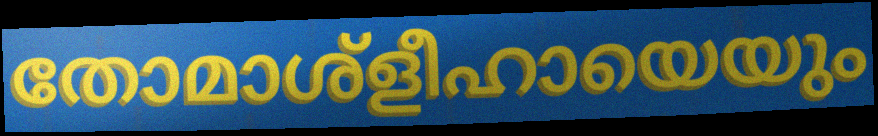
തോമാശ്ളീഹായെയും